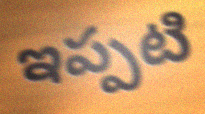
ఇప్పటి